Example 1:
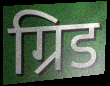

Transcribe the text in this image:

ग्रिड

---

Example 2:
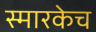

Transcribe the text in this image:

स्मारकेच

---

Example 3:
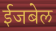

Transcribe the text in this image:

ईजबेल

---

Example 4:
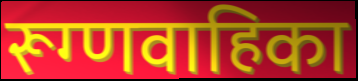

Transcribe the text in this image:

रूग्णवाहिका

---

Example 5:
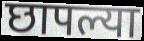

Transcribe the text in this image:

छापल्या